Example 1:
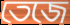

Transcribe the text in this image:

তেজে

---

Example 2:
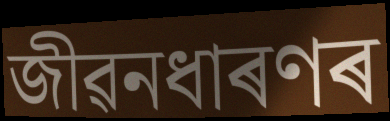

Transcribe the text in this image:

জীৱনধাৰণৰ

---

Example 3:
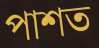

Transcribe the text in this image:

পাশত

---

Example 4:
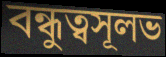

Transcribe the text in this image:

বন্ধুত্বসূলভ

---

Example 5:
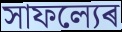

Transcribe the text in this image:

সাফল্যেৰ